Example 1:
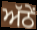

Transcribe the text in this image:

ਅੱਠੇਂ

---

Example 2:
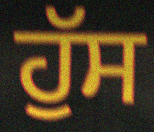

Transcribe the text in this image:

ਹੁੱਸ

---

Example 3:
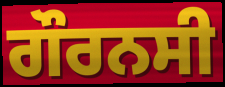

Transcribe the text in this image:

ਗੌਰਨਸੀ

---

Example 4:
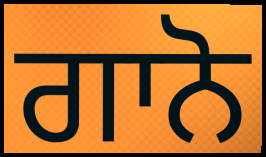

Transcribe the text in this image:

ਗਾਨੋ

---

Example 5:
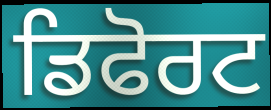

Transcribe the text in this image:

ਡਿਫੋਰਟ